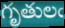
గృతులఁ